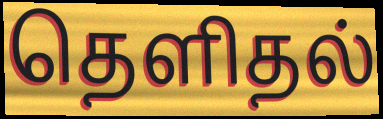
தெளிதல்